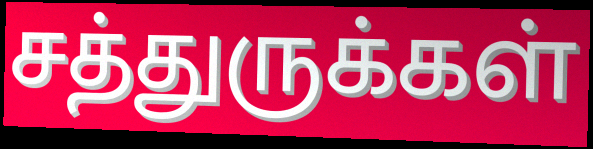
சத்துருக்கள்